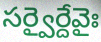
సర్వైర్దేవైః